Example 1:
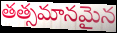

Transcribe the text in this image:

తత్సమానమైన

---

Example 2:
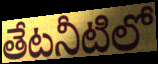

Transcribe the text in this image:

తేటనీటిలో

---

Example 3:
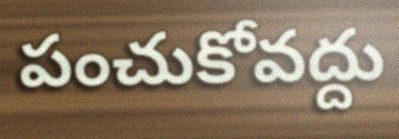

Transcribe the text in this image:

పంచుకోవద్దు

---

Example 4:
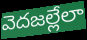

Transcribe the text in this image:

వెదజల్లేలా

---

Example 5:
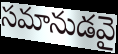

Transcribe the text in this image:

సమానుడవై